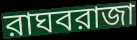
রাঘবরাজা